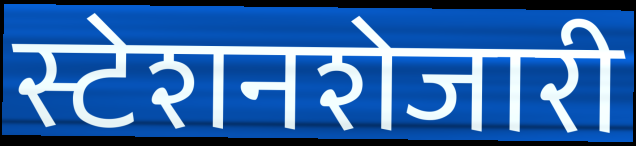
स्टेशनशेजारी